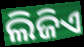
ଲିଜିଏ